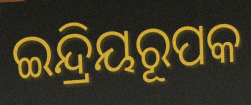
ଇନ୍ଦ୍ରିୟରୂପକ